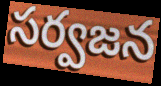
సర్వజన